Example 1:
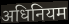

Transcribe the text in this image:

अधिनियम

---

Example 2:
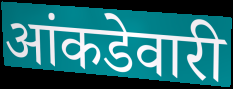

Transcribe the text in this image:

आंकडेवारी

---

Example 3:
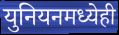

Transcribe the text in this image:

युनियनमध्येही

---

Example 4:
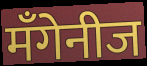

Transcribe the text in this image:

मँगेनीज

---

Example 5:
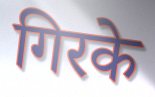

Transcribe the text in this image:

गिरके